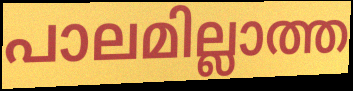
പാലമില്ലാത്ത